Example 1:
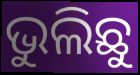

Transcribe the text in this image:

ଭୁଲିଛୁ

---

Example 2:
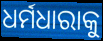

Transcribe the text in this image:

ଧର୍ମଧାରାକୁ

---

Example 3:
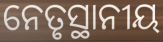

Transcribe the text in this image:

ନେତୃସ୍ଥାନୀୟ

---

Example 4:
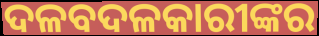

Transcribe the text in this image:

ଦଳବଦଳକାରୀଙ୍କର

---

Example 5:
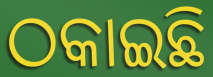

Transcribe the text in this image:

ଠକାଇଛି